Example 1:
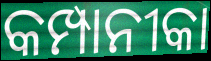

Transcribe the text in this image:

କମ୍ପାନୀକା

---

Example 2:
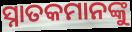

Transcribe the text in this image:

ସ୍ନାତକମାନଙ୍କୁ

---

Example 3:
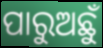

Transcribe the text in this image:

ପାରୁଅଛୁଁ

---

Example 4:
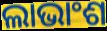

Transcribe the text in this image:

ଲାଭାଂଶ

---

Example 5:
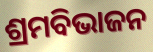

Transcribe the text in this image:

ଶ୍ରମବିଭାଜନ